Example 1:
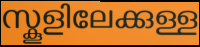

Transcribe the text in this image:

സ്കൂളിലേക്കുള്ള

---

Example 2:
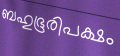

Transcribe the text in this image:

ബഹുഭൂരിപക്ഷം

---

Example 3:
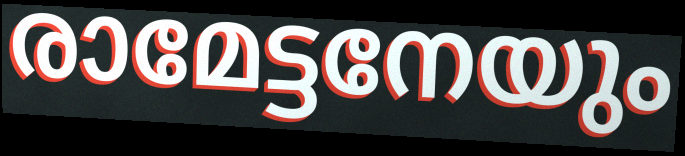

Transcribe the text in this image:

രാമേട്ടനേയും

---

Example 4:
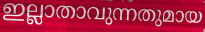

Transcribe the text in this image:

ഇല്ലാതാവുന്നതുമായ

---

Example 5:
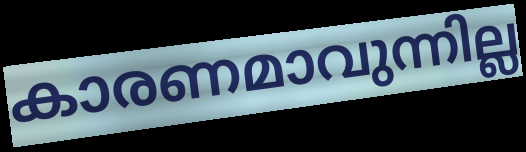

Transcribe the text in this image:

കാരണമാവുന്നില്ല